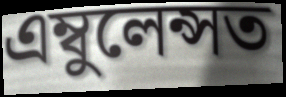
এম্বুলেন্সত